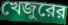
খেজুরের